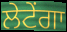
ਲੇਟੇਂਗਾ